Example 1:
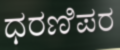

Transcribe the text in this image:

ಧರಣಿಪರ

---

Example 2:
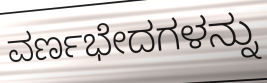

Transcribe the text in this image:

ವರ್ಣಭೇದಗಳನ್ನು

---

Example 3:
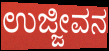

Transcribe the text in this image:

ಉಜ್ಜೀವನ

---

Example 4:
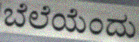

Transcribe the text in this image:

ಬೆಲೆಯೆಂದು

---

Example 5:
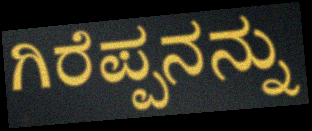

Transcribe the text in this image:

ಗಿರೆಪ್ಪನನ್ನು